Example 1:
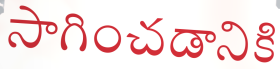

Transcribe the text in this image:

సాగించడానికి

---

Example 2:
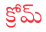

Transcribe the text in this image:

క్రోమ్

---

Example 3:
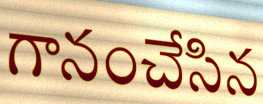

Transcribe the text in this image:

గానంచేసిన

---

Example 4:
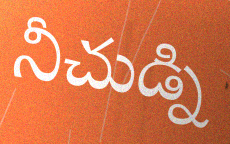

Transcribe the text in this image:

నీచుడ్ని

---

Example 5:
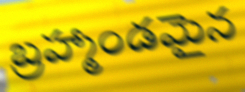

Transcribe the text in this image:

బ్రహ్మాండమైన